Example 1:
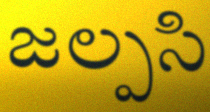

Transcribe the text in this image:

జల్పసి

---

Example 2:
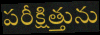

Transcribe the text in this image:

పరీక్షిత్తును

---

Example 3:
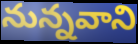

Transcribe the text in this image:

నున్నవాని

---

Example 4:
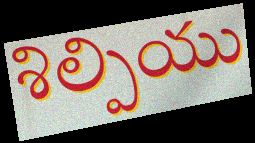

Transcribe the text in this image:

శిల్పియు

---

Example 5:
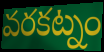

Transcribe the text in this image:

వరకట్నం